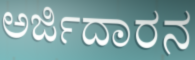
ಅರ್ಜಿದಾರನ